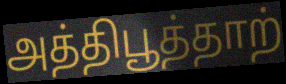
அத்திபூத்தாற்